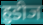
हुडीज